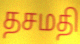
தசமதி